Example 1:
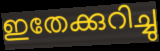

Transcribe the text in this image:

ഇതേക്കുറിച്ചു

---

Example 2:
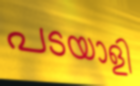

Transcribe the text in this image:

പടയാളി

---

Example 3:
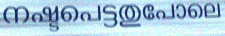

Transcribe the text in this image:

നഷ്ടപെട്ടതുപോലെ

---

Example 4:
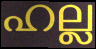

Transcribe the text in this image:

ഹല്ല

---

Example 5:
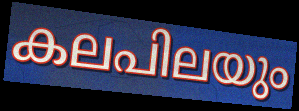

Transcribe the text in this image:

കലപിലയും